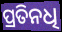
ପ୍ରତିନଧି